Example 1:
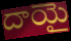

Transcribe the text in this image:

దాయై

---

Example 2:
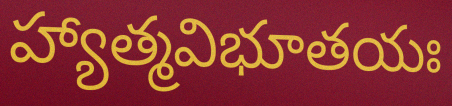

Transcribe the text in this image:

హ్యాత్మవిభూతయః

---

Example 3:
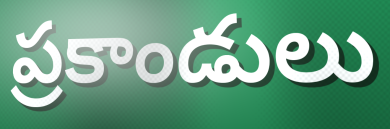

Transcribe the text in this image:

ప్రకాండులు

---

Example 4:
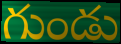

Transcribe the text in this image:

గుండు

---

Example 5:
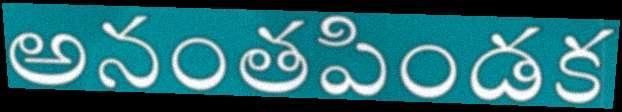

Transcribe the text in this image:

అనంతపిండక